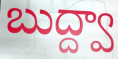
బుద్ద్వా